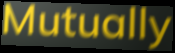
Mutually